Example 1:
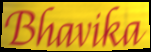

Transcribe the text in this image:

Bhavika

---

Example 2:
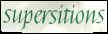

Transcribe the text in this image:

supersitions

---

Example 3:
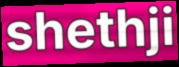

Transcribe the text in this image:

shethji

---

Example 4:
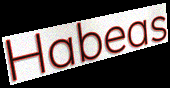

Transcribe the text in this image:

Habeas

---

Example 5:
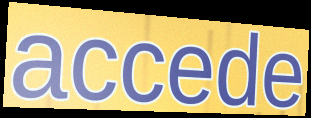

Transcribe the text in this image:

accede